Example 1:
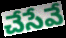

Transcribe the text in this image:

చేసేవే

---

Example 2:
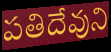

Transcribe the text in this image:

పతిదేవుని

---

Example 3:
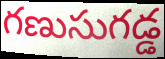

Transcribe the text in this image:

గణుసుగడ్డ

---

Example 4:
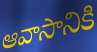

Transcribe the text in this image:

ఆవాసానికి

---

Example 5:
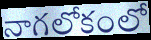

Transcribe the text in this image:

నాగలోకంలో